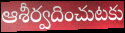
ఆశీర్వదించుటకు